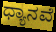
ಧ್ಯಾನವೆ